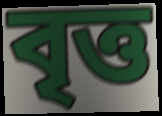
বৃত্ত